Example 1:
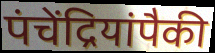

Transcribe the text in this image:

पंचेंद्रियांपैकी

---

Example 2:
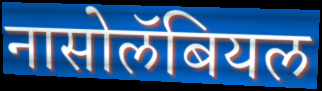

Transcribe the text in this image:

नासोलॅबियल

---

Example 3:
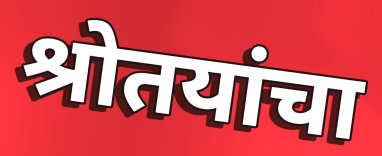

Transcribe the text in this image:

श्रोतयांचा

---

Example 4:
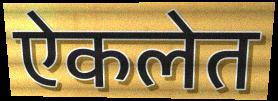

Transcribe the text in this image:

ऐकलेत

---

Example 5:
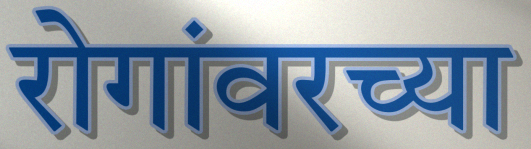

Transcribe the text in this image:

रोगांवरच्या